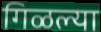
गिळल्या